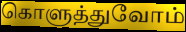
கொளுத்துவோம்